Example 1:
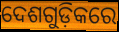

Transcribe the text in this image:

ଦେଶଗୁଡ଼ିକରେ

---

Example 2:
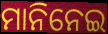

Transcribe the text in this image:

ମାନିନେଇ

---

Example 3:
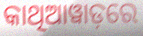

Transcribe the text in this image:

କାଥିଆୱାଡ଼ରେ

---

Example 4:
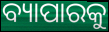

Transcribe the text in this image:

ବ୍ୟାପାରକୁ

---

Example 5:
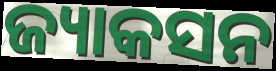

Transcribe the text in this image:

ଜ୍ୟାକସନ